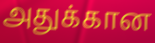
அதுக்கான